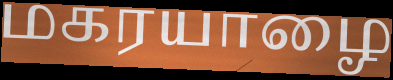
மகரயாழை